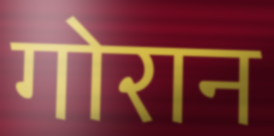
गोरान